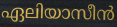
ഏലിയാസീൻ